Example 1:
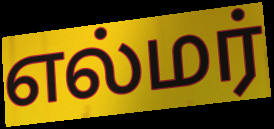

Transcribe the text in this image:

எல்மர்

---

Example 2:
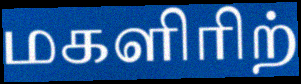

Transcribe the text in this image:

மகளிரிற்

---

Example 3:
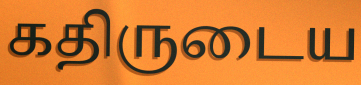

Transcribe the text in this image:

கதிருடைய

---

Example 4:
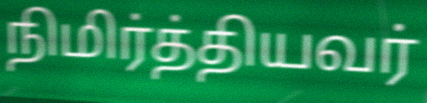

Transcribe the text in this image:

நிமிர்த்தியவர்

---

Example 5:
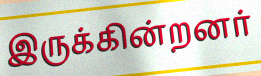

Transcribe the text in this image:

இருக்கின்றனர்